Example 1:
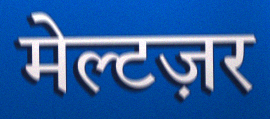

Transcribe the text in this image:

मेल्टज़र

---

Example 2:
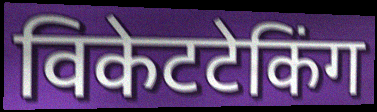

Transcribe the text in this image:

विकेटटेकिंग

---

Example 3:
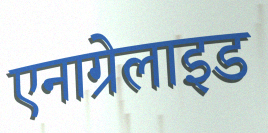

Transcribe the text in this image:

एनाग्रेलाइड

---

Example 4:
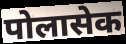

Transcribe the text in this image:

पोलासेक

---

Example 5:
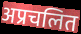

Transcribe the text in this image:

अप्रचलित